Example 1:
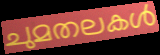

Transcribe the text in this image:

ചുമതലകൾ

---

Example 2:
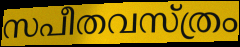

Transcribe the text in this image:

സപീതവസ്ത്രം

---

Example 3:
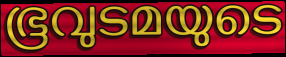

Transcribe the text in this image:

ഭൂവുടമയുടെ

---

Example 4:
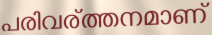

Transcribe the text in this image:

പരിവര്ത്തനമാണ്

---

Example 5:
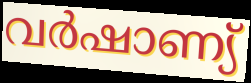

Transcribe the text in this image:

വർഷാണ്യ്